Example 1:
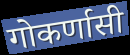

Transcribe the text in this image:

गोकर्णासी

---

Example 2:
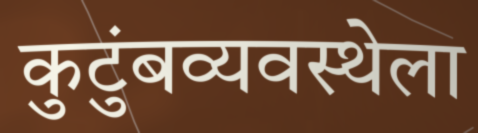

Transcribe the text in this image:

कुटुंबव्यवस्थेला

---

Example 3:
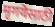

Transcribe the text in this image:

मृगयेसाठी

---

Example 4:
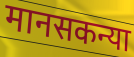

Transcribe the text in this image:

मानसकन्या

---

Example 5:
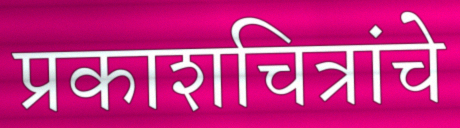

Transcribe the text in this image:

प्रकाशचित्रांचे